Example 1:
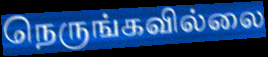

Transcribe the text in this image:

நெருங்கவில்லை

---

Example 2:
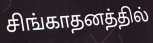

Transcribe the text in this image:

சிங்காதனத்தில்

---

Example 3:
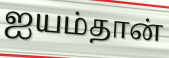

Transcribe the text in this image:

ஐயம்தான்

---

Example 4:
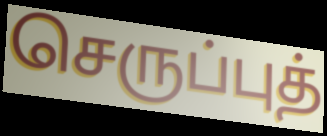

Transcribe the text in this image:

செருப்புத்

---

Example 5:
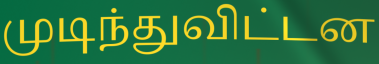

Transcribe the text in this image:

முடிந்துவிட்டன